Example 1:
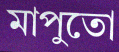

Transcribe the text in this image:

মাপুতো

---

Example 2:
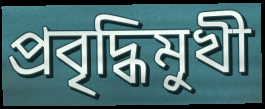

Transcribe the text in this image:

প্রবৃদ্ধিমুখী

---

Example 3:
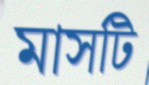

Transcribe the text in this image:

মাসটি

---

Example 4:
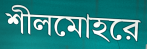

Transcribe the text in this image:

শীলমোহরে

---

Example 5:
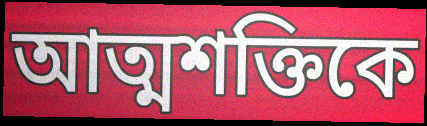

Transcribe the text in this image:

আত্মশক্তিকে